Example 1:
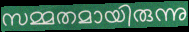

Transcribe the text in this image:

സമ്മതമായിരുന്നു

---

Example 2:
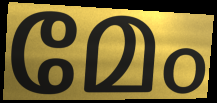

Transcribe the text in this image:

മേം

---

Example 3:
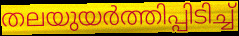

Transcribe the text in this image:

തലയുയർത്തിപ്പിടിച്ച്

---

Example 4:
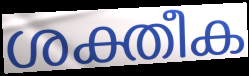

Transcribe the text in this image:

ശക്തീക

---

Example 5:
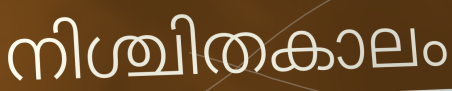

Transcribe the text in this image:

നിശ്ചിതകാലം